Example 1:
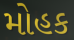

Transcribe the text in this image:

મોહક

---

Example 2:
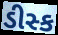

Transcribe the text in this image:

ડીસ્ક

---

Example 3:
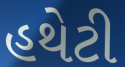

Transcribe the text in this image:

હથેટી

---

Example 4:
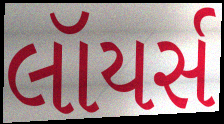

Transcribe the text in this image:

લૉયર્સ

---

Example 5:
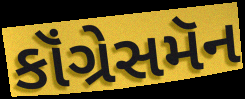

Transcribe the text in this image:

કૉંગ્રેસમૅન